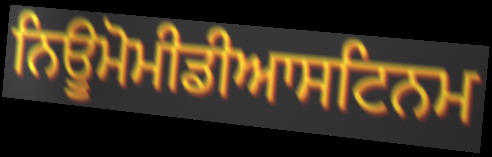
ਨਿਊਮੋਮੀਡੀਆਸਟਿਨਮ